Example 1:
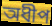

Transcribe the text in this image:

অধীপ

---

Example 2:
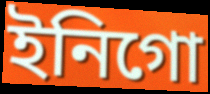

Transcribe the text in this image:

ইনিগো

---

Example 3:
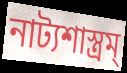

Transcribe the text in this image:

নাট্যশাস্ত্রম্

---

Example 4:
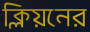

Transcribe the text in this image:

ক্লিয়নের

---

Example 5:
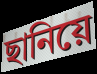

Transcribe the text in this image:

ছানিয়ে